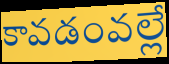
కావడంవల్లే